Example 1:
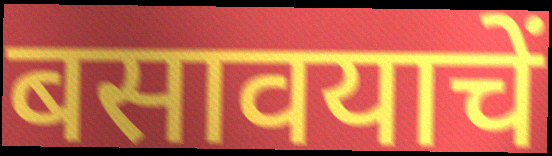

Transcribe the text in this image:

बसावयाचें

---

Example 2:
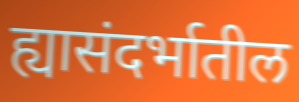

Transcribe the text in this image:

ह्यासंदर्भातील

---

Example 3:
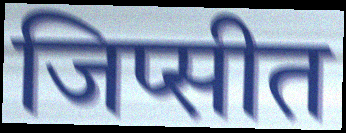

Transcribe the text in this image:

जिप्सीत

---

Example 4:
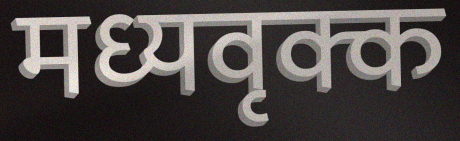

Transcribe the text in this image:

मध्यवृक्क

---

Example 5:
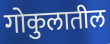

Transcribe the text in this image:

गोकुलातील